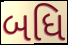
બધિ